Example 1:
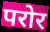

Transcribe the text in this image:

परोर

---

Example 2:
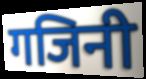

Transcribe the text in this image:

गजिनी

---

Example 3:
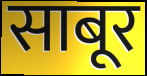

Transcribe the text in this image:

साबूर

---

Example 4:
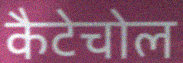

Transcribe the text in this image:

कैटेचोल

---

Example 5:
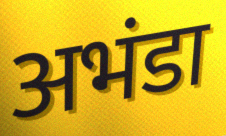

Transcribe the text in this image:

अभंडा